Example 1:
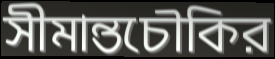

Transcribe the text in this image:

সীমান্তচৌকির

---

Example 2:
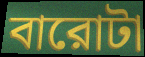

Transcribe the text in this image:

বারোটা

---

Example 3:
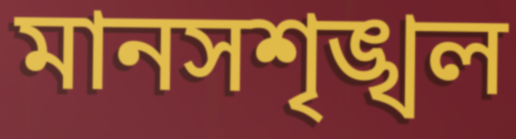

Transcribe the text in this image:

মানসশৃঙ্খল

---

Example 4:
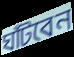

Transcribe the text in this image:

ঘাঁটবেন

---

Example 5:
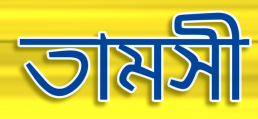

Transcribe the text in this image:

তামসী